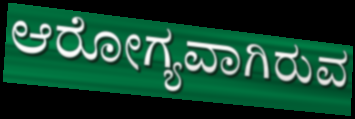
ಆರೋಗ್ಯವಾಗಿರುವ